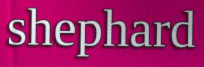
shephard